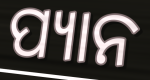
ପ୍ୟାନ